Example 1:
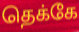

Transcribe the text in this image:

தெக்கே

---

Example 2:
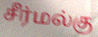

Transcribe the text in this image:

சீர்மல்கு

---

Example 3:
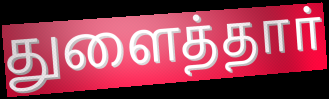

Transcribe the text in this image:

துளைத்தார்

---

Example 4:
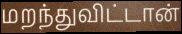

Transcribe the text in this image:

மறந்துவிட்டான்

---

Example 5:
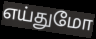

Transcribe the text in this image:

எய்துமோ